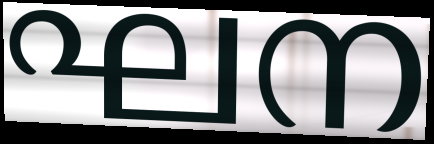
ഘന